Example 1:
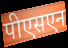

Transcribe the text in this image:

पीएसएन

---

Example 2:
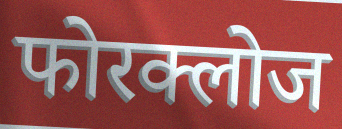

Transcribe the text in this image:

फोरक्लोज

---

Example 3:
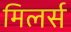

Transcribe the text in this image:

मिलर्स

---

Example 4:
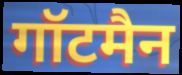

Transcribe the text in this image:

गॉटमैन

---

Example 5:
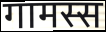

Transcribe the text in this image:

गामस्स